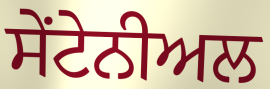
ਸੇਂਟੇਨੀਅਲ